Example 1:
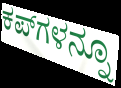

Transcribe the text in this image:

ಕಪ್‌ಗಳನ್ನೂ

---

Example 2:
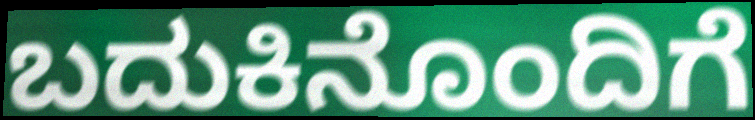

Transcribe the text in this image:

ಬದುಕಿನೊಂದಿಗೆ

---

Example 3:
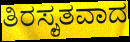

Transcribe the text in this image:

ತಿರಸ್ಕೃತವಾದ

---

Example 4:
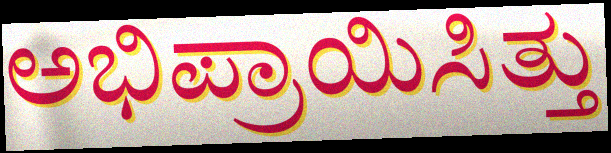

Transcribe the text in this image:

ಅಭಿಪ್ರಾಯಿಸಿತ್ತು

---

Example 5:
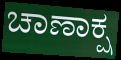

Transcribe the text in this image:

ಚಾಣಾಕ್ಷ